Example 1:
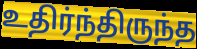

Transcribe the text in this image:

உதிர்ந்திருந்த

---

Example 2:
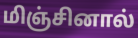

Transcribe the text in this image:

மிஞ்சினால்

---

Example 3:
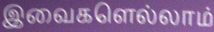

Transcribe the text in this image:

இவைகளெல்லாம்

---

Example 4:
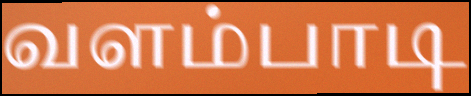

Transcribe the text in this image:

வளம்பாடி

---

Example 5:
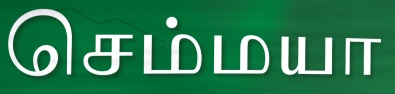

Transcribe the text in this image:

செம்மயா